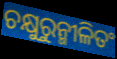
ଚକ୍ଷୁରୁନ୍ମୀଳିତଂ